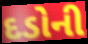
દડોની